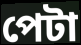
পেটা